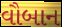
વૌબાન